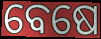
ବେଷେ